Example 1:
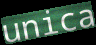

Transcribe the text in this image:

unica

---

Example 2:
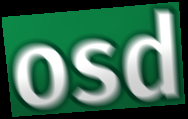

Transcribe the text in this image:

osd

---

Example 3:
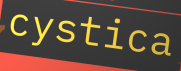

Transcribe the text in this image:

cystica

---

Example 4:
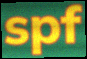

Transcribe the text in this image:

spf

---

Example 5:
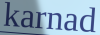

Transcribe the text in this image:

karnad